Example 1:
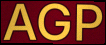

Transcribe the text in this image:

AGP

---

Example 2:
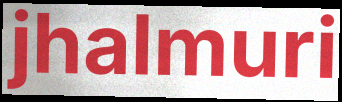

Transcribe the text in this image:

jhalmuri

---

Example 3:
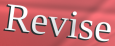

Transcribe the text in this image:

Revise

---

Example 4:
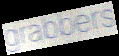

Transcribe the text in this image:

grabbers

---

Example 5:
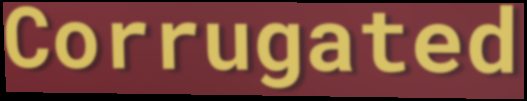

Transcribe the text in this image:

Corrugated